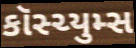
કૉસ્ચ્યુમ્સ